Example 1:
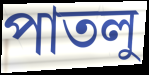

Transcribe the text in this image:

পাতলু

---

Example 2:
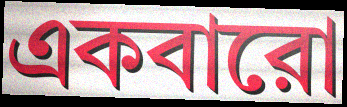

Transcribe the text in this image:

একবারো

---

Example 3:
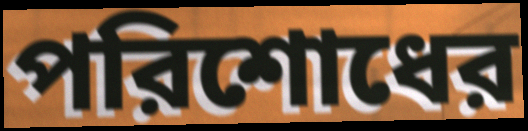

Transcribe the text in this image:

পরিশোধের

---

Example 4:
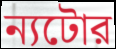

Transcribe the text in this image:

ন্যটোর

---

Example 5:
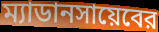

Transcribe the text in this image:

ম্যাডানসায়েবের